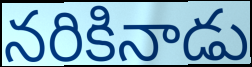
నరికినాడు